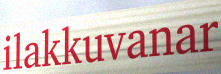
ilakkuvanar